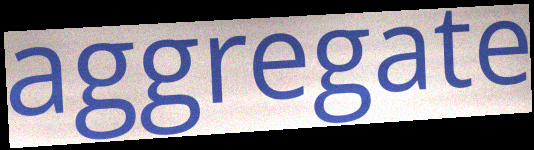
aggregate